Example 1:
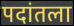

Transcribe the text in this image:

पदांतला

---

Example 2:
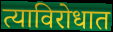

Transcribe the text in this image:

त्याविरोधात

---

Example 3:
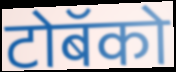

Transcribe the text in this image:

टोबॅको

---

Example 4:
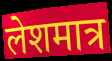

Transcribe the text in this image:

लेशमात्र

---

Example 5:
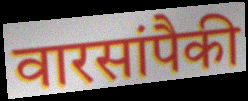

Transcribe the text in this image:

वारसांपैकी